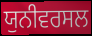
ਯੁਨੀਵਰਸਲ